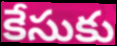
కేసుకు